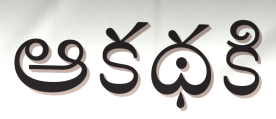
ఆకథకి